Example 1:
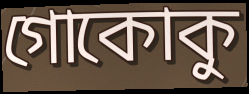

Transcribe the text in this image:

গোকোকু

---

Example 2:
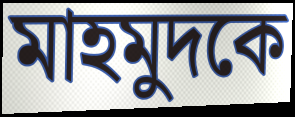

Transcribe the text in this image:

মাহমুদকে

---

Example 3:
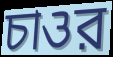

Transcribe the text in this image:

চাওর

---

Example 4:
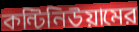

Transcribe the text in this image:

কন্টিনিউয়ামের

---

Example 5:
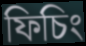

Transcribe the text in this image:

ফিচিং